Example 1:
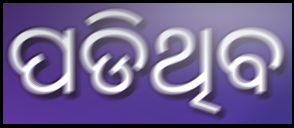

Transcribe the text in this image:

ପଡିଥିବ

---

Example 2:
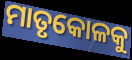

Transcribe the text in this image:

ମାତୃକୋଳକୁ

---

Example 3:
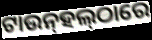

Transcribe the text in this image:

ଟାଉନ୍‌ହଲ୍‌ଠାରେ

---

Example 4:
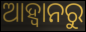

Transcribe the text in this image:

ଆହ୍ବାନରୁ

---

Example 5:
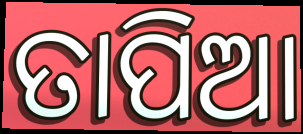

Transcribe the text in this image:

ତାପିଆ